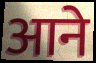
आने